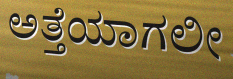
ಅತ್ತೆಯಾಗಲೀ